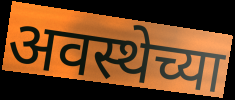
अवस्थेच्या